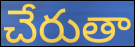
చేరుతా